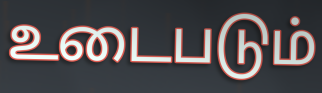
உடைபடும்